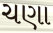
ચણા